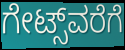
ಗೇಟ್ಸ್‌ವರೆಗೆ